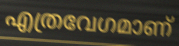
എത്രവേഗമാണ്